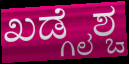
ಖಡ್ಗೈಶ್ಚ